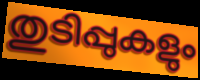
തുടിപ്പുകളും